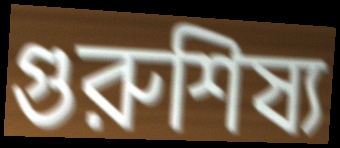
গুরুশিষ্য